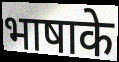
भाषाके